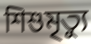
শিশুমৃত্যু